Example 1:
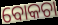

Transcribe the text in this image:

ବୋକଚା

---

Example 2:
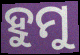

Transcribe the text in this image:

ହୁମୁ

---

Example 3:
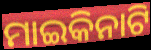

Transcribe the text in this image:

ମାଇକିନାଟି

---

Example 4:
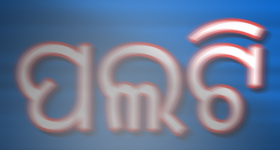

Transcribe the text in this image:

ପଲଟି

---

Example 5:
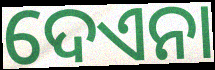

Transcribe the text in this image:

ଦେଏନା